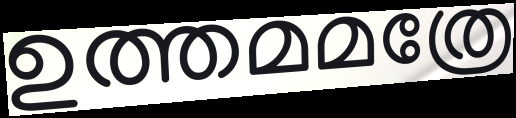
ഉത്തമമത്രേ